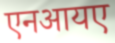
एनआयए